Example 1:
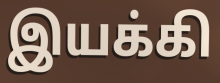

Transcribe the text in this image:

இயக்கி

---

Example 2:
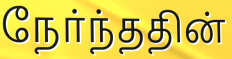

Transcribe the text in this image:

நேர்ந்ததின்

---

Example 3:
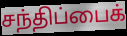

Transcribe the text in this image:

சந்திப்பைக்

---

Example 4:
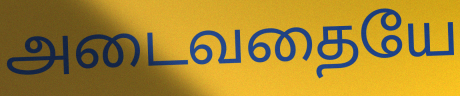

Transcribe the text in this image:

அடைவதையே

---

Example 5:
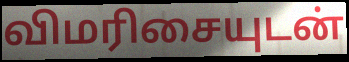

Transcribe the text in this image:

விமரிசையுடன்